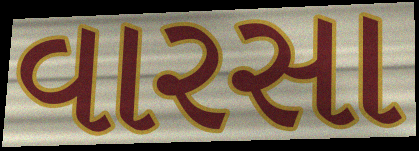
વારસા